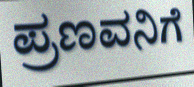
ಪ್ರಣವನಿಗೆ